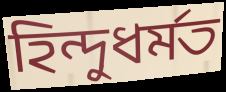
হিন্দুধৰ্মত